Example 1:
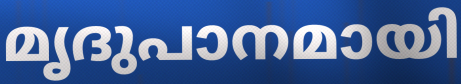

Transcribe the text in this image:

മൃദുപാനമായി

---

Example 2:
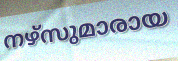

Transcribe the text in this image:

നഴ്സുമാരായ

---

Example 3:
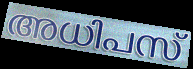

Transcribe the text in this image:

അധിപസ്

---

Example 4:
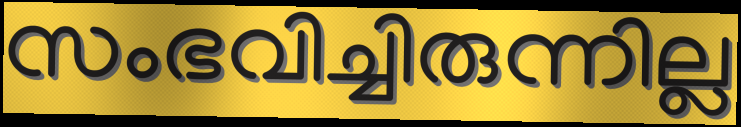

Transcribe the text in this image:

സംഭവിച്ചിരുന്നില്ല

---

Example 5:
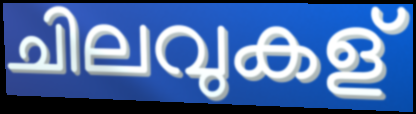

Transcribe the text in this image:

ചിലവുകള്